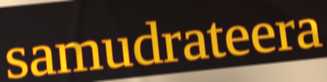
samudrateera